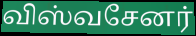
விஸ்வசேனர்